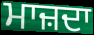
ਮਾਜ਼ਦਾ